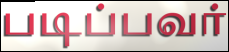
படிப்பவர்